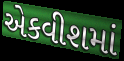
એકવીશમાં